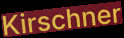
Kirschner